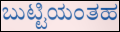
ಬುಟ್ಟಿಯಂತಹ